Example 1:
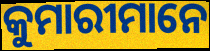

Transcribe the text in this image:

କୁମାରୀମାନେ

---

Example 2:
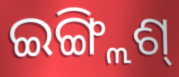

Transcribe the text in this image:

ଇଙ୍ଗ୍ଲିଶ୍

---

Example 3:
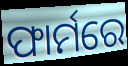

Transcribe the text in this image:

ଫାର୍ମରେ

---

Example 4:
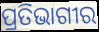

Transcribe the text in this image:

ପ୍ରତିଭାଗୀର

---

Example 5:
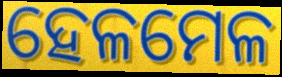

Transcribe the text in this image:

ହେଳମେଳ